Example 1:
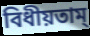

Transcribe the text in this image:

বিধীয়তাম্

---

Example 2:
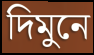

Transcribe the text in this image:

দিমুনে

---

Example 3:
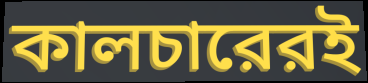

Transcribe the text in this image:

কালচারেরই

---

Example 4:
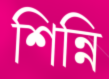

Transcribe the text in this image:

শিন্নি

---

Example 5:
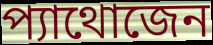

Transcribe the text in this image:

প্যাথোজেন